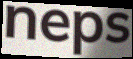
neps